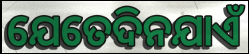
ଯେତେଦିନଯାଏଁ